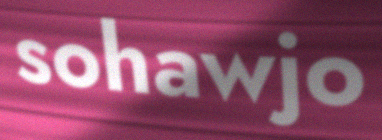
sohawjo